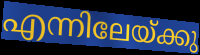
എന്നിലേയ്ക്കു